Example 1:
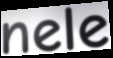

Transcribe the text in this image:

nele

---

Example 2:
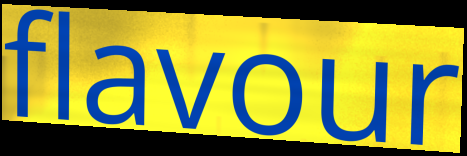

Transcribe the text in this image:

flavour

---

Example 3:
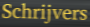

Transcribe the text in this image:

Schrijvers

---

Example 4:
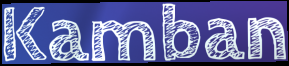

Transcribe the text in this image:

Kamban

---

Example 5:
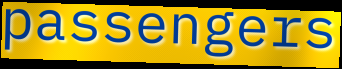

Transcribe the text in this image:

passengers